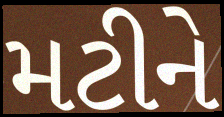
મટીને